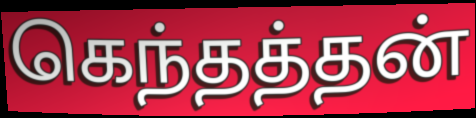
கெந்தத்தன்